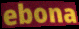
ebona